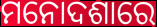
ମନୋଦଶାରେ